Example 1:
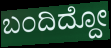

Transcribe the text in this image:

ಬಂದಿದ್ದೋ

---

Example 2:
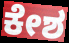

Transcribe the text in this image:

ಕೇಶ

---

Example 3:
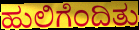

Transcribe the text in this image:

ಹುಲಿಗೆಂದಿತು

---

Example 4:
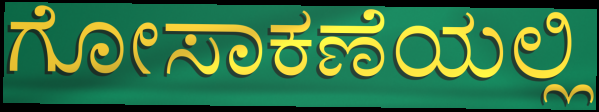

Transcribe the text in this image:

ಗೋಸಾಕಣೆಯಲ್ಲಿ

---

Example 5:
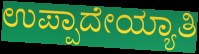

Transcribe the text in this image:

ಉಪ್ಪಾದೇಯ್ಯಾತಿ